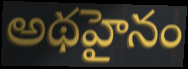
అథహైనం